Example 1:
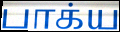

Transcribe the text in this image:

பாக்ய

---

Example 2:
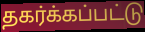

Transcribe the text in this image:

தகர்க்கப்பட்டு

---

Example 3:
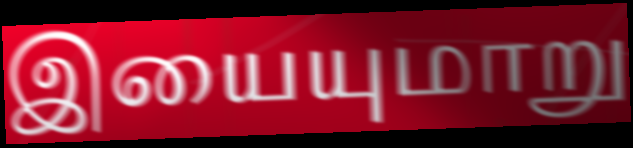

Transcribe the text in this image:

இயையுமாறு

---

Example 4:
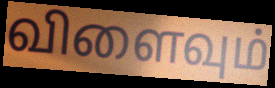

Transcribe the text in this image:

விளைவும்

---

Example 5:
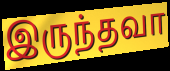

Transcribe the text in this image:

இருந்தவா